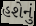
હશેનું